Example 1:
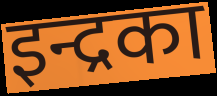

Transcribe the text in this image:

इन्द्रका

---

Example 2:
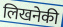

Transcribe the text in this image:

लिखनेकी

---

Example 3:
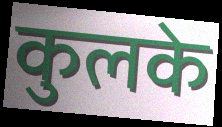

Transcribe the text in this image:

कुलके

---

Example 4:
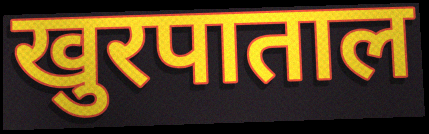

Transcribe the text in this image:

खुरपाताल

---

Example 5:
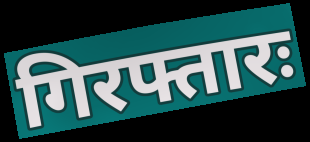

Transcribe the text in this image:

गिरफ्तारः